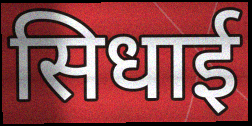
सिधाई